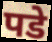
पडे